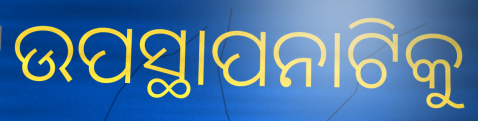
ଉପସ୍ଥାପନାଟିକୁ